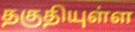
தகுதியுள்ள